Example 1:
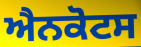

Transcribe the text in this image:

ਐਨਕੋਟਸ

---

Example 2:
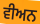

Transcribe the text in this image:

ਵੀਅਨ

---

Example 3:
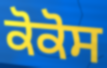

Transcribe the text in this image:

ਕੋਕੋਸ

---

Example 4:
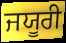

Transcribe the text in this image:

ਜਯੂਰੀ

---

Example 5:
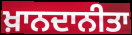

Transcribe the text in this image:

ਖ਼ਾਨਦਾਨੀਤਾ